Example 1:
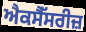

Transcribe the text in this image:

ਐਕਸੈੱਸਰੀਜ਼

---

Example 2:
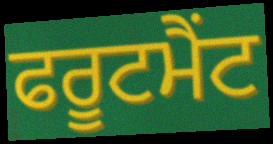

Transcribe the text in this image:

ਫਰੂਟਮੈਂਟ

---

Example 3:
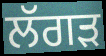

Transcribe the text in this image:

ਲੱਗੜ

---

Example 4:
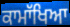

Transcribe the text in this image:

ਕਾਮਾੱਖਿਆ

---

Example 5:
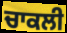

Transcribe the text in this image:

ਚਾਕਲੀ